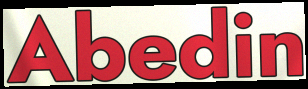
Abedin